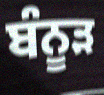
ਬੰਨੂੜ